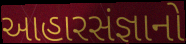
આહારસંજ્ઞાનો